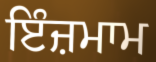
ਇੰਜ਼ਮਾਮ